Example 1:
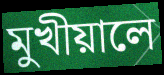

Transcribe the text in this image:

মুখীয়ালে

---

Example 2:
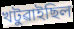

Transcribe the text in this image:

খটুৱাইছিল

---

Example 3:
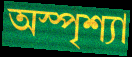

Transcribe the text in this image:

অস্পৃশ্যা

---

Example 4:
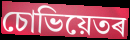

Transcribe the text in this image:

চোভিয়েতৰ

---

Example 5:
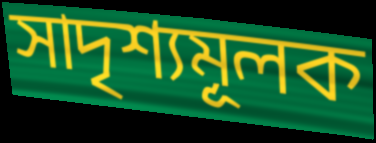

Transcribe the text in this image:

সাদৃশ্যমূলক